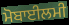
ਮੋਬਾਈਲਮੀ